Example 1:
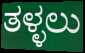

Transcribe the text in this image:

ತಳ್ಳಲು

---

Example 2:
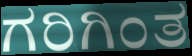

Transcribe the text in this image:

ಗರಿಗಿಂತ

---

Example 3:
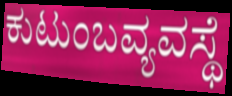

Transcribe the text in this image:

ಕುಟುಂಬವ್ಯವಸ್ಥೆ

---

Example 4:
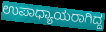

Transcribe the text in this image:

ಉಪಾಧ್ಯಾಯರಾಗಿದ್ದ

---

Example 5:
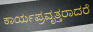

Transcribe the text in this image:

ಕಾರ್ಯಪ್ರವೃತ್ತರಾದರೆ